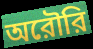
অরৌরি